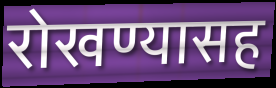
रोखण्यासह